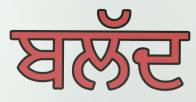
ਬਲੱਦ